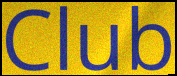
Club